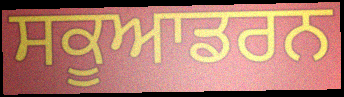
ਸਕੂਆਡਰਨ